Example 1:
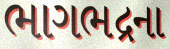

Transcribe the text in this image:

ભાગભદ્રના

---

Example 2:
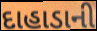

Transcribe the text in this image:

દાહાડાની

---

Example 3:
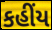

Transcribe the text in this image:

કહીંય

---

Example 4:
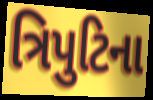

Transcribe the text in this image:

ત્રિપુટિના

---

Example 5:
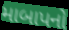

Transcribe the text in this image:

માબાપનો